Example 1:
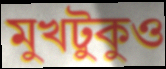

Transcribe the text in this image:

মুখটুকুও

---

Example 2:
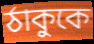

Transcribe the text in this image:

ঠাকুকে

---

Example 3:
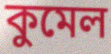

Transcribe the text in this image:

কুমেল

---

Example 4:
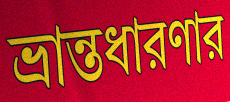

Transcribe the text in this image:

ভ্রান্তধারণার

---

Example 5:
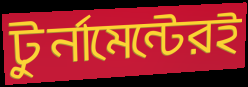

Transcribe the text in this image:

টুর্নামেন্টেরই